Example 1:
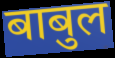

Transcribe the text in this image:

बाबुल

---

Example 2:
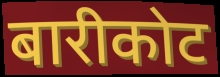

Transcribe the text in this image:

बारीकोट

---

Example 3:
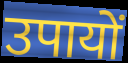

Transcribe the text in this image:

उपायों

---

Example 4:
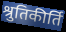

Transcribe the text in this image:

श्रुतिकीर्ति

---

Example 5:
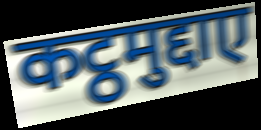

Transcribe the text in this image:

कट्ठमुद्दाए